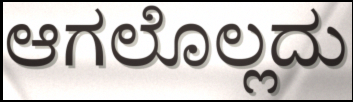
ಆಗಲೊಲ್ಲದು